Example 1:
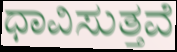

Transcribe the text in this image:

ಧಾವಿಸುತ್ತವೆ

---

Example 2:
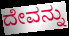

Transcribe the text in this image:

ದೇವನ್ನು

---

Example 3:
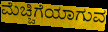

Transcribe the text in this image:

ಮೆಚ್ಚಿಗೆಯಾಗುವ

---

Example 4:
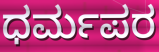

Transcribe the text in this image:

ಧರ್ಮಪರ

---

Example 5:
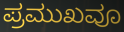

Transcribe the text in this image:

ಪ್ರಮುಖವೂ